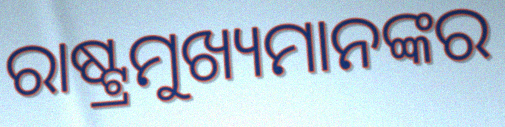
ରାଷ୍ଟ୍ରମୁଖ୍ୟମାନଙ୍କର